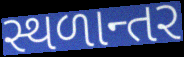
સ્થળાન્તર